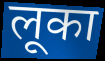
लूका